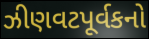
ઝીણવટપૂર્વકનો